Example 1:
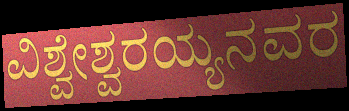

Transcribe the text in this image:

ವಿಶ್ವೇಶ್ವರಯ್ಯನವರ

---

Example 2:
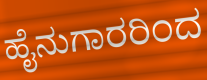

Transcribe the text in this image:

ಹೈನುಗಾರರಿಂದ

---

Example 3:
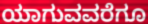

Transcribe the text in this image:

ಯಾಗುವವರೆಗೂ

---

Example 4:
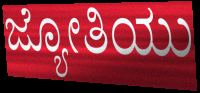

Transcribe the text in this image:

ಜ್ಯೋತಿಯು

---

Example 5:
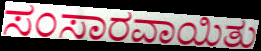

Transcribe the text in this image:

ಸಂಸಾರವಾಯಿತು